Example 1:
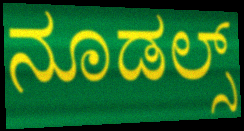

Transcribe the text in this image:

ನೂಡಲ್ಸ್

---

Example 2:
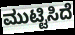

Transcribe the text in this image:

ಮುಟ್ಟಿಸಿದೆ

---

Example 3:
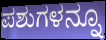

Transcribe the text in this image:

ಪಶುಗಳನ್ನೂ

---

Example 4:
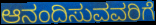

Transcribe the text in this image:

ಆನಂದಿಸುವವರಿಗೆ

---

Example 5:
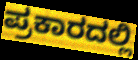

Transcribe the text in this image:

ಪ್ರಕಾರದಲ್ಲಿ